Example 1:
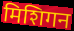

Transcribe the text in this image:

मिशिगन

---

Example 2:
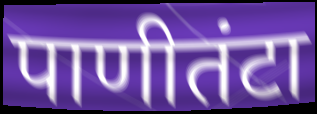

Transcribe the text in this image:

पाणीतंटा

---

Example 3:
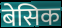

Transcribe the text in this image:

बेसिक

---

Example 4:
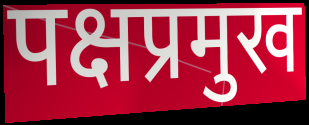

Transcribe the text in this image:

पक्षप्रमुख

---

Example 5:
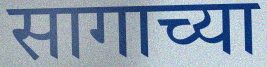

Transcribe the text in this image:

सागाच्या